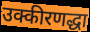
उक्कीरणद्धा